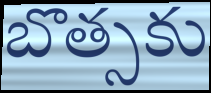
బొత్సకు